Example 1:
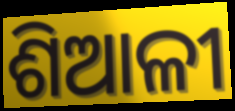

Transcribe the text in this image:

ଶିଆଳୀ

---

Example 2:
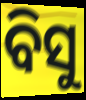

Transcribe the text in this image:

ବିସୁ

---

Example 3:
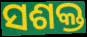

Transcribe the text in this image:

ସଶକ୍ତ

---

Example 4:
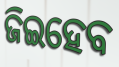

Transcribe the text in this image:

ଜିଇହେବ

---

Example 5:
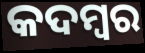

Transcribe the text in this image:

କଦମ୍ବର